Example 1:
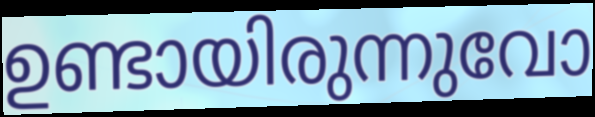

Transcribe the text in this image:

ഉണ്ടായിരുന്നുവോ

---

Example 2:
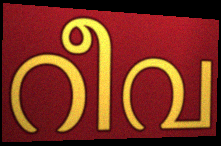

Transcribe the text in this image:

റീവ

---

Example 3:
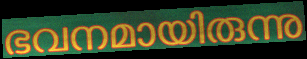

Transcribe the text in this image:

ഭവനമായിരുന്നു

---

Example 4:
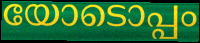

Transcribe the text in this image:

യോടൊപ്പം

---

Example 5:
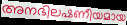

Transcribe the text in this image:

അനഭിലഷണീയമായ